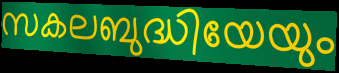
സകലബുദ്ധിയേയും